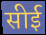
सीई